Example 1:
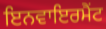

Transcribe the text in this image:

ਇਨਵਾਇਰਮੈਂਟ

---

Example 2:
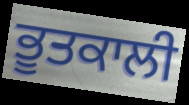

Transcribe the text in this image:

ਭੂਤਕਾਲੀ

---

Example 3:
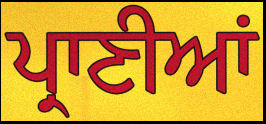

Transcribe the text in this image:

ਪ੍ਰਾਣੀਆਂ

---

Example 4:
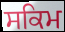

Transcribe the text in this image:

ਸਕਿਮ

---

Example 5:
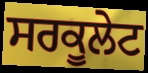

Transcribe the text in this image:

ਸਰਕੂਲੇਟ